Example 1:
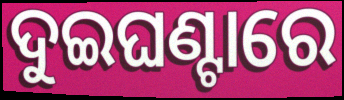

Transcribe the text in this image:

ଦୁଇଘଣ୍ଟାରେ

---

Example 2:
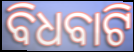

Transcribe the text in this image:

ବିଧବାଟି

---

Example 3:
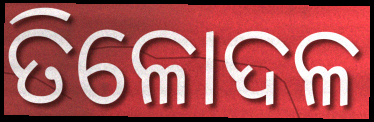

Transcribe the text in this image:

ତିଳୋଦଳ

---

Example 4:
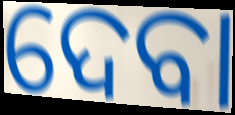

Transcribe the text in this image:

ଦେବା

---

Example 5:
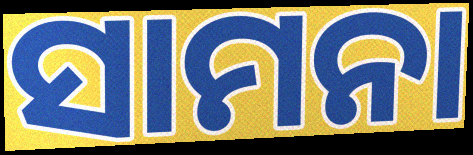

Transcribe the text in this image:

ସାମନା